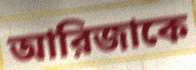
আরিজাকে